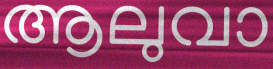
ആലുവാ